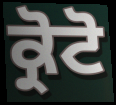
ਕ੍ਰੋਟੋ